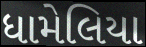
ધામેલિયા